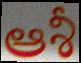
ఆశీ